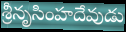
శ్రీనృసింహదేవుడు